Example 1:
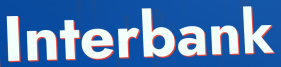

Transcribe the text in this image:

Interbank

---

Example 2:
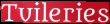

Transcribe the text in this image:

Tuileries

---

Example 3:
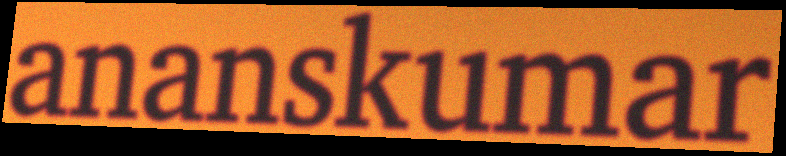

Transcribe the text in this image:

ananskumar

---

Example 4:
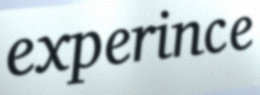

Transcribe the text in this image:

experince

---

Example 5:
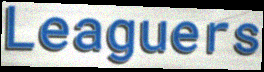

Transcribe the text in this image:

Leaguers